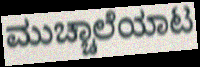
ಮುಚ್ಚಾಲೆಯಾಟ